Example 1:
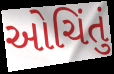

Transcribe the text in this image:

ઓચિંતું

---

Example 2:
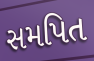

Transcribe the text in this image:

સમપિત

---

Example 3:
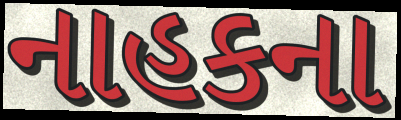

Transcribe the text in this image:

નાહકના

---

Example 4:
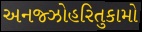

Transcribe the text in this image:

અનજ્ઝોહરિતુકામો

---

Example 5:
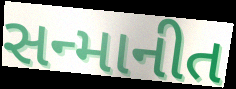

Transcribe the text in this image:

સન્માનીત